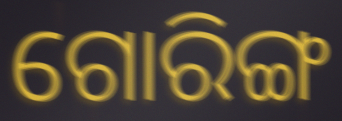
ଗୋରିଙ୍ଗ